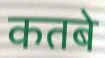
कतबे